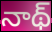
నాథ్